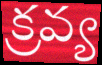
క్రవ్య